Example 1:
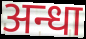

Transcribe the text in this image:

अन्धा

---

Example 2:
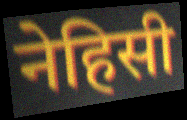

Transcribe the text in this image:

नेहिसी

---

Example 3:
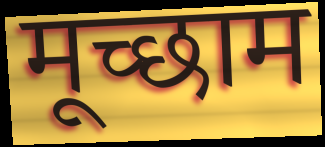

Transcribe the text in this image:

मूच्छाम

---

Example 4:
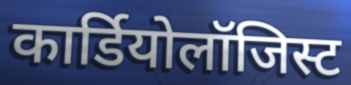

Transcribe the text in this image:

कार्डियोलॉजिस्ट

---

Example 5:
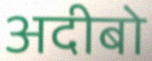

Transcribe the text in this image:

अदीबो